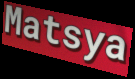
Matsya